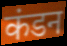
कंडन